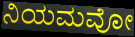
ನಿಯಮವೋ